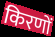
किरणों